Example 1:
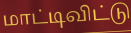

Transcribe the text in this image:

மாட்டிவிட்டு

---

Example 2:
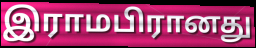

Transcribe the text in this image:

இராமபிரானது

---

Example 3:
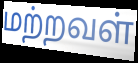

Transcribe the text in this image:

மற்றவள்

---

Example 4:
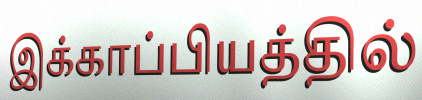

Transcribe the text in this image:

இக்காப்பியத்தில்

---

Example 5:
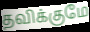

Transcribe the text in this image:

தவிக்குமே